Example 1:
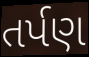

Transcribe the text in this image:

તર્પણ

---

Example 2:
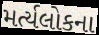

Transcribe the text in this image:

મર્ત્યલોકના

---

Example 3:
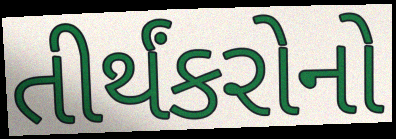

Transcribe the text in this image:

તીર્થંકરોનો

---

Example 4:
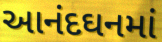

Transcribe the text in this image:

આનંદઘનમાં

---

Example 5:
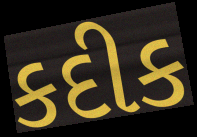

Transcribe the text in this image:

કદીક